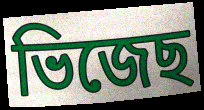
ভিজেছ